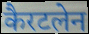
कैरटलेन